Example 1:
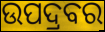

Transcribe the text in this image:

ଉପଦ୍ରବର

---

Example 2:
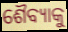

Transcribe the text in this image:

ଶୈବ୍ୟାକୁ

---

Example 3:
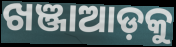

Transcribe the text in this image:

ଖଞ୍ଜାଆଡ଼କୁ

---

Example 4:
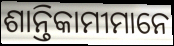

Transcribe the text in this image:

ଶାନ୍ତିକାମୀମାନେ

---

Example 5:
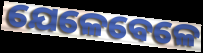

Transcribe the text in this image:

ଯେଳେବେଳେ